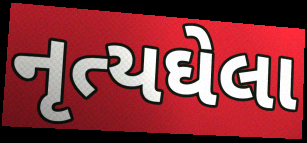
નૃત્યઘેલા